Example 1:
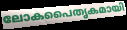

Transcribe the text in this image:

ലോകപൈതൃകമായി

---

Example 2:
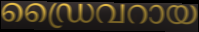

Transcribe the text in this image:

ഡ്രൈവറായ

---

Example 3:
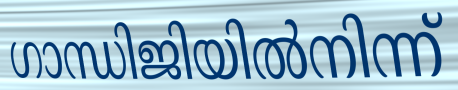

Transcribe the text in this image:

ഗാന്ധിജിയിൽനിന്ന്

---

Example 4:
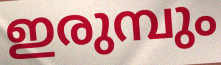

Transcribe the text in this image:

ഇരുമ്പും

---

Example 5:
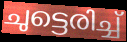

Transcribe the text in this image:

ചുട്ടെരിച്ച്